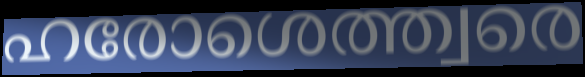
ഹരോശെത്ത്വരെ